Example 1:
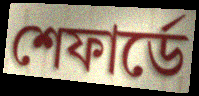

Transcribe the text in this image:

শেফার্ডে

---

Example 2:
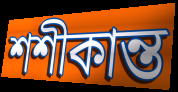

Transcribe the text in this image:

শশীকান্ত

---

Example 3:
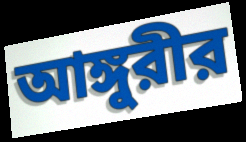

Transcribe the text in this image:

আঙ্গুরীর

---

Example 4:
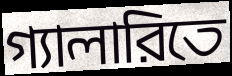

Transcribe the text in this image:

গ্যালারিতে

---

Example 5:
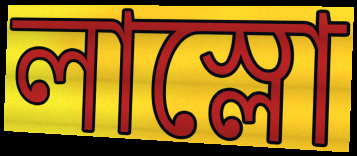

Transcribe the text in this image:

লাস্লো